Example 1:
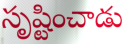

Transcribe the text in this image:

సృష్టించాడు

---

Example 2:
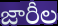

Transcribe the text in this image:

జారీల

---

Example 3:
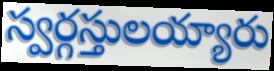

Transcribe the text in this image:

స్వర్గస్తులయ్యారు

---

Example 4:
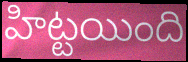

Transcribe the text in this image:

హిట్టయింది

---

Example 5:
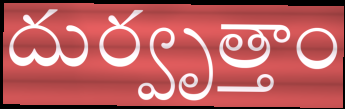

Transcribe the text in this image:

దుర్వృత్తాం